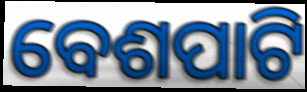
ବେଶପାଟି